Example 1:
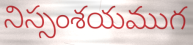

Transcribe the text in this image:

నిస్సంశయముగ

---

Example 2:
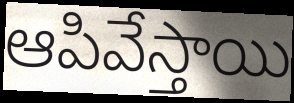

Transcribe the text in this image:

ఆపివేస్తాయి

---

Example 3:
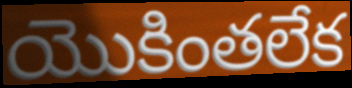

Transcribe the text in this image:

యొకింతలేక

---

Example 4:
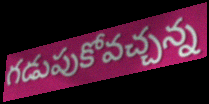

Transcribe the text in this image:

గడుపుకోవచ్చన్న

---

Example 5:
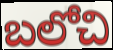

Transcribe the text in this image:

బలోచి